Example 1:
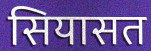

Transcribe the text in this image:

सियासत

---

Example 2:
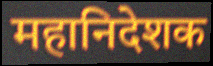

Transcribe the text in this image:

महानिदेशक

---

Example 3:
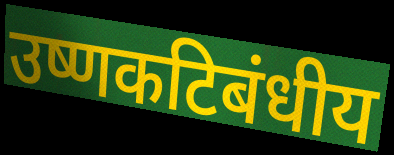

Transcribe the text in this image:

उष्णकटिबंधीय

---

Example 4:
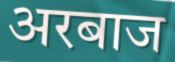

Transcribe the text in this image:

अरबाज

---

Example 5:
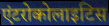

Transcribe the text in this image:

एंटरोकोलाइटिस